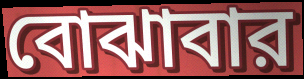
বোঝাবার